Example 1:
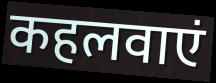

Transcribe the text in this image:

कहलवाएं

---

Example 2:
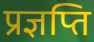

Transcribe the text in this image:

प्रज्ञप्ति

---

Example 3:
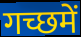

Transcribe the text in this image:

गच्छमें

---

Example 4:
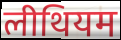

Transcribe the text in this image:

लीथियम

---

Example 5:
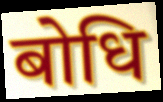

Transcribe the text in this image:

बोधि